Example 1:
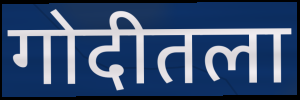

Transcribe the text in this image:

गोदीतला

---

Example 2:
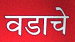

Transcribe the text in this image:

वडाचे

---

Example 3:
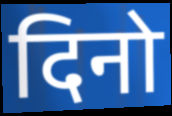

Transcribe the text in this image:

दिनो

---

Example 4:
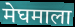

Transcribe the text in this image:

मेघमाला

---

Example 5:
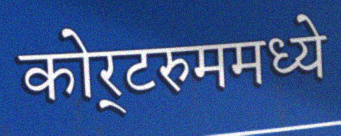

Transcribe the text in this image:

कोर्टरुममध्ये